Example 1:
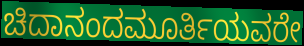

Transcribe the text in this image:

ಚಿದಾನಂದಮೂರ್ತಿಯವರೇ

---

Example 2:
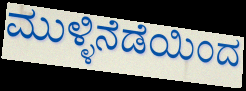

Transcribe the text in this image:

ಮುಳ್ಳಿನೆಡೆಯಿಂದ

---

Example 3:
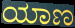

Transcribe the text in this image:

ಯಾಣ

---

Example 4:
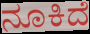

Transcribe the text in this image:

ನೂಕಿದೆ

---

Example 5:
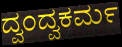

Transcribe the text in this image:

ದ್ವಂದ್ವಕರ್ಮ